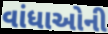
વાંધાઓની